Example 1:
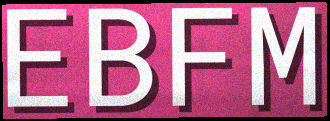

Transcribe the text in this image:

EBFM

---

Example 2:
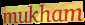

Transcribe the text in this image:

mukham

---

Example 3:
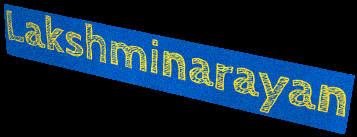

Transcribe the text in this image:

Lakshminarayan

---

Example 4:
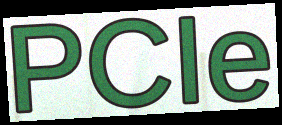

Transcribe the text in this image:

PCIe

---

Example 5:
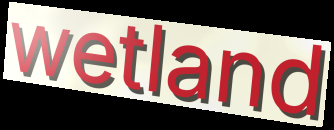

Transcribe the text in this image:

wetland